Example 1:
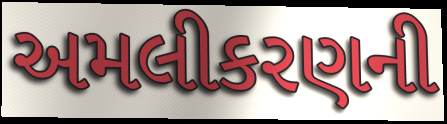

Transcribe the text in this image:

અમલીકરણની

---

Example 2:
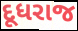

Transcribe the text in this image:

દૂધરાજ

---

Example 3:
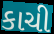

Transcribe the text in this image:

કાચી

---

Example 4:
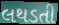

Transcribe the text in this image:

લથડતી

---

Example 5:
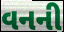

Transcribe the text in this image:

વનની